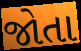
જોતા